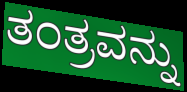
ತಂತ್ರವನ್ನು